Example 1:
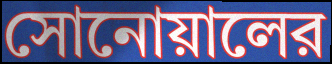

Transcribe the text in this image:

সোনোয়ালের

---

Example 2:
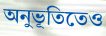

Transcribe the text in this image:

অনুভূতিতেও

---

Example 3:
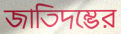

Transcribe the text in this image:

জাতিদম্ভের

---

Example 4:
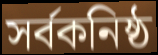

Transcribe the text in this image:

সর্বকনিষ্ঠ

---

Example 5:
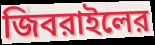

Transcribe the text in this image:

জিবরাইলের